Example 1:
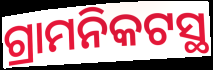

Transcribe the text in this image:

ଗ୍ରାମନିକଟସ୍ଥ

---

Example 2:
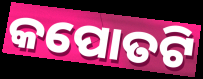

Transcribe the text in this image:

କପୋତଟି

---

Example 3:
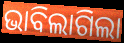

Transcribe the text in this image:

ଭାବିଲାଗିଲା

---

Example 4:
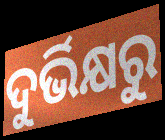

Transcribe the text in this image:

ଦୁର୍ଭିକ୍ଷରୁ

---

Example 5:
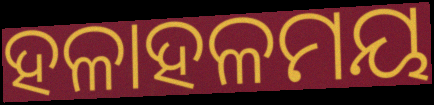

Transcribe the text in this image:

ହଳାହଳମୟ